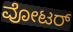
ವೋಟರ್